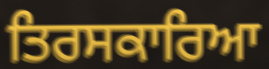
ਤਿਰਸਕਾਰਿਆ